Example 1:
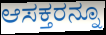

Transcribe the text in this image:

ಆಸಕ್ತರನ್ನೂ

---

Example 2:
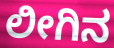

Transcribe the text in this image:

ಲೀಗಿನ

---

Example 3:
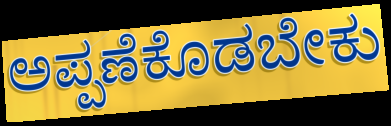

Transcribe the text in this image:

ಅಪ್ಪಣೆಕೊಡಬೇಕು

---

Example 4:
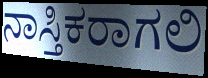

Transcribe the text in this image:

ನಾಸ್ತಿಕರಾಗಲಿ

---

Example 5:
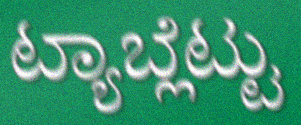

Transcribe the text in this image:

ಟ್ಯಾಬ್ಲೆಟ್ಟು